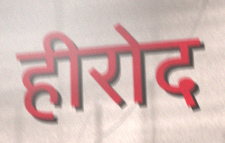
हीरोद